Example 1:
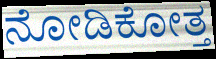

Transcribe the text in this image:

ನೋಡಿಕೋತ್ತ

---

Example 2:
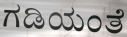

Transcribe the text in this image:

ಗಡಿಯಂತೆ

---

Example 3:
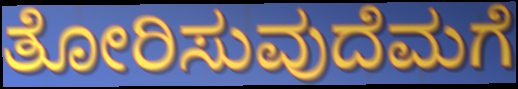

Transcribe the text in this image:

ತೋರಿಸುವುದೆಮಗೆ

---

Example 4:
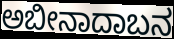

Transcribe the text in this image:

ಅಬೀನಾದಾಬನ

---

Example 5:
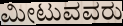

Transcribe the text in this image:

ಮೀಟುವವರು